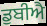
ਡੁਬੀਐ